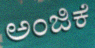
ಅಂಜಿಕೆ